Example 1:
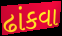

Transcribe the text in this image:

ઢાંકવા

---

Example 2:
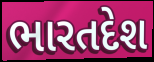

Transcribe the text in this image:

ભારતદેશ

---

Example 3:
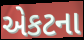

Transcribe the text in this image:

એકટના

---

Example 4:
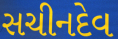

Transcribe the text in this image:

સચીનદેવ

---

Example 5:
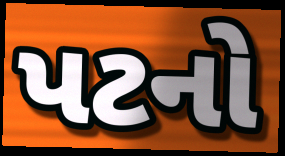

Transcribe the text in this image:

પટનો